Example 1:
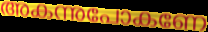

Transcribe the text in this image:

അകന്നുപോകണേ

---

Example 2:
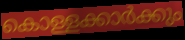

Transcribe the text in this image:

കൊള്ളക്കാർക്കും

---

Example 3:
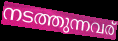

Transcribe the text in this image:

നടത്തുന്നവര്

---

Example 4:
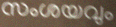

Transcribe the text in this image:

സംശയവും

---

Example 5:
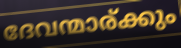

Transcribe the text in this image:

ദേവന്മാര്ക്കും